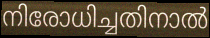
നിരോധിച്ചതിനാൽ